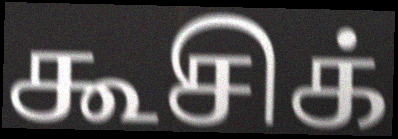
கூசிக்